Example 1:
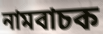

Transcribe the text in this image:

নামবাচক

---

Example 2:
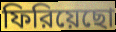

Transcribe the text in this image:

ফিরিয়েছো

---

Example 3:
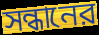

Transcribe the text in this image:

সন্ধানের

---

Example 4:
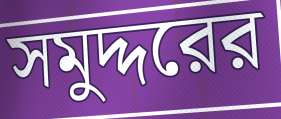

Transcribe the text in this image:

সমুদ্দরের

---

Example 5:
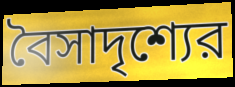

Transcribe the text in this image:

বৈসাদৃশ্যের